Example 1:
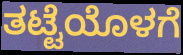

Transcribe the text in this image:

ತಟ್ಟೆಯೊಳಗೆ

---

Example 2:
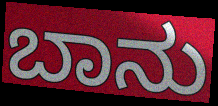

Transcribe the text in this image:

ಬಾನು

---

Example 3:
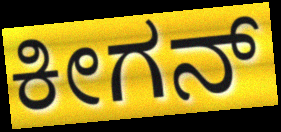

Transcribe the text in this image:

ಕೀಗನ್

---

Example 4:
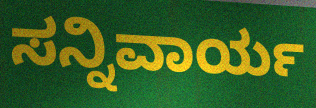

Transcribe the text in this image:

ಸನ್ನಿವಾರ್ಯ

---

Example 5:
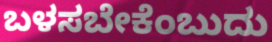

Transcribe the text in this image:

ಬಳಸಬೇಕೆಂಬುದು